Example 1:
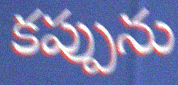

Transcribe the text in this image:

కప్పును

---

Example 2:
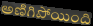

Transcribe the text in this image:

అణిగిపోయింది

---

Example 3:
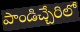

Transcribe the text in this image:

పాండిచ్చేరిలో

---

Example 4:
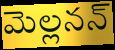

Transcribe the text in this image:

మెల్లనన్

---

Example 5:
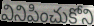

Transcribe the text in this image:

వినిపించుకోని